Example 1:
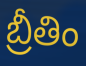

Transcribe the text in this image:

బ్రీతిం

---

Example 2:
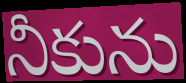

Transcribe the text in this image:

నీకును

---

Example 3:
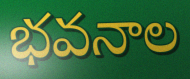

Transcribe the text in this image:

భవనాల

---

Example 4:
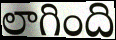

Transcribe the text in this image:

లాగింది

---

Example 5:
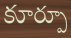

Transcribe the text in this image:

కూర్పూ